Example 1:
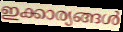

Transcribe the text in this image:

ഇക്കാര്യങ്ങൾ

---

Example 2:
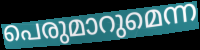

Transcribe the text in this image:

പെരുമാറുമെന്ന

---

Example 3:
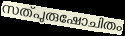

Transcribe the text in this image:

സത്പുരുഷോചിതം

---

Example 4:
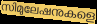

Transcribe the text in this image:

സിമുലേഷനുകളെ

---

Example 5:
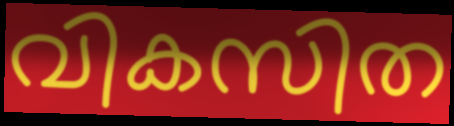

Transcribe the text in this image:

വികസിത